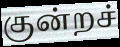
குன்றச்